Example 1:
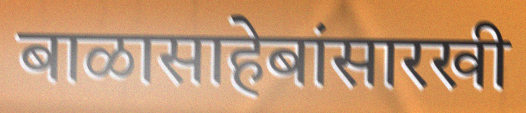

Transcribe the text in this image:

बाळासाहेबांसारखी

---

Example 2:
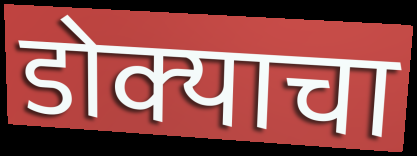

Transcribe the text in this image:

डोक्याचा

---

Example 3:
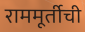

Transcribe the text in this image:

राममूर्तीची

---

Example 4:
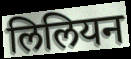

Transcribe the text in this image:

लिलियन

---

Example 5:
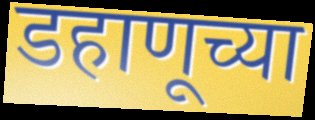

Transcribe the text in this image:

डहाणूच्या